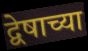
द्वेषाच्या